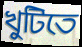
খুটিতে